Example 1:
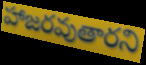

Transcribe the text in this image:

హాజరవుతారని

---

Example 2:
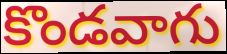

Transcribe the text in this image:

కొండవాగు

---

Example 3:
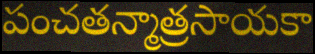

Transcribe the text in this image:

పంచతన్మాత్రసాయకా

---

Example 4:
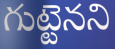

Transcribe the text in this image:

గుట్టెనని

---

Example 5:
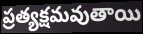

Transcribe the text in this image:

ప్రత్యక్షమవుతాయి